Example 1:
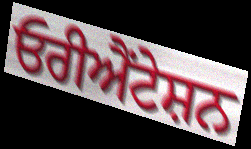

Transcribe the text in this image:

ਓਰੀਐਂਟੇਸ਼ਨ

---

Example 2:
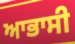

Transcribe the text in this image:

ਆਭਾਸੀ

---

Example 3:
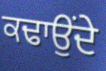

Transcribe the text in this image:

ਕਢਾਉਂਦੇ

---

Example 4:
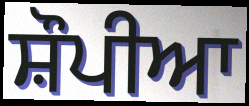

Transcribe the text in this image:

ਸ਼ੌਪੀਆ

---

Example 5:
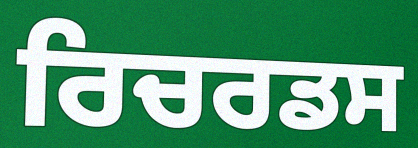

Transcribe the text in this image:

ਰਿਚਰਡਸ